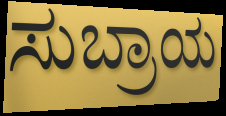
ಸುಬ್ರಾಯ